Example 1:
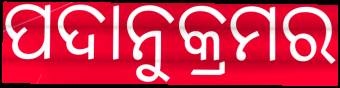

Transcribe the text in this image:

ପଦାନୁକ୍ରମର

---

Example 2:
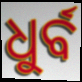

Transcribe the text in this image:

ଧୁର୍ବ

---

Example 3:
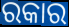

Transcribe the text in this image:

ରକାର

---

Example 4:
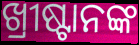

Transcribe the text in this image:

ଖ୍ରୀଷ୍ଟାନଙ୍କ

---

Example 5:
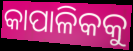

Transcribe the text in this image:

କାପାଳିକକୁ